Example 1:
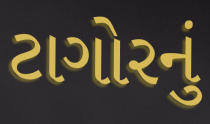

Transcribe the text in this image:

ટાગોરનું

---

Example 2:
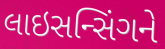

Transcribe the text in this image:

લાઇસન્સિંગને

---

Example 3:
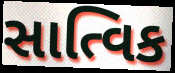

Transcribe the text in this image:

સાત્વિક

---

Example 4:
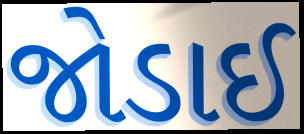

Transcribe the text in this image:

જોડાઈ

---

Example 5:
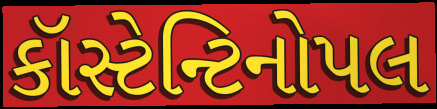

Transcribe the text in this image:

કૉસ્ટેન્ટિનોપલ